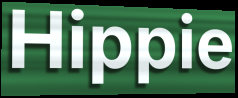
Hippie